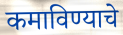
कमाविण्याचे